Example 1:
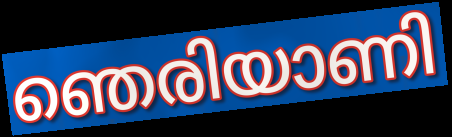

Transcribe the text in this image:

ഞെരിയാണി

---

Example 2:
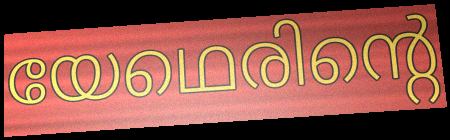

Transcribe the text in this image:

യേഥെരിന്റെ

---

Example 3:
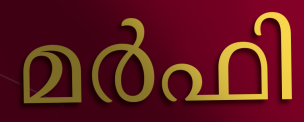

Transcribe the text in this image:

മർഫി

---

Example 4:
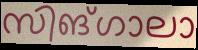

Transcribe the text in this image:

സിങ്ഗാലാ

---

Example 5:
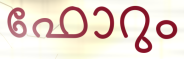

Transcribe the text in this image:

ഫോറും